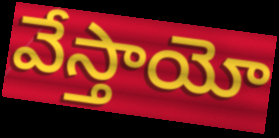
వేస్తాయో